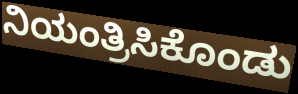
ನಿಯಂತ್ರಿಸಿಕೊಂಡು